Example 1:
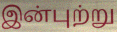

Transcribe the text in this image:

இன்புற்று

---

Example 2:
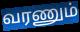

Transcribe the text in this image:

வரணும்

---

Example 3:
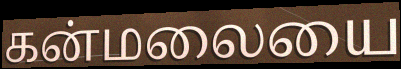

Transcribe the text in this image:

கன்மலையை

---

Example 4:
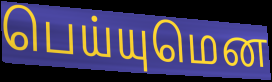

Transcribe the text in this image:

பெய்யுமென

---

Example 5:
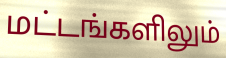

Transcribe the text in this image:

மட்டங்களிலும்